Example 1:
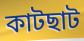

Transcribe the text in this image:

কাটছাট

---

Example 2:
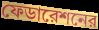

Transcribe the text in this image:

ফেডারেশনের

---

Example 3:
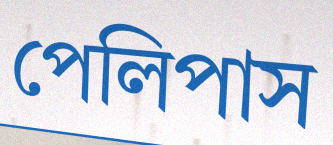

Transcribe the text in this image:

পেলিপাস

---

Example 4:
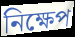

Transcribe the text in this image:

নিক্ষেপ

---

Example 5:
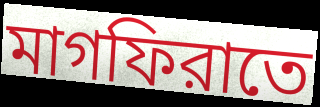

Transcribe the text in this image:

মাগফিরাতে